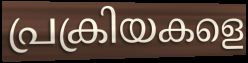
പ്രക്രിയകളെ